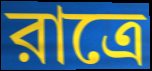
রাত্রে